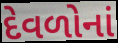
દેવળોનાં